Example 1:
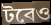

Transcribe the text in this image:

টবেও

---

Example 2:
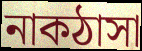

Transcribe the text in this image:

নাকঠাসা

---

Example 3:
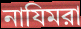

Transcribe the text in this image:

নাযিমরা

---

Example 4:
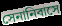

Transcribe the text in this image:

সেনানিবাসে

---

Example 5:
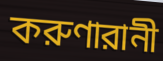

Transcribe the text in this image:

করুণারানী